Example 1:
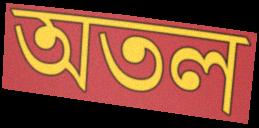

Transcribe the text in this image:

অতল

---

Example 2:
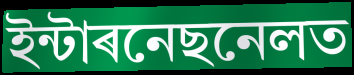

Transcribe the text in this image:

ইন্টাৰনেছনেলত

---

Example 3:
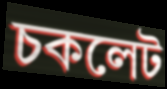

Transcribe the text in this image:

চকলেট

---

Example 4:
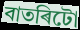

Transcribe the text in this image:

বাতৰিটো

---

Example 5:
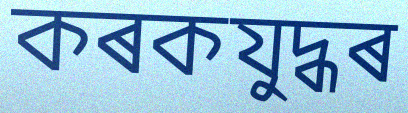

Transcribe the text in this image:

কৰকযুদ্ধৰ